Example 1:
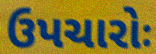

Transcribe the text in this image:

ઉપચારોઃ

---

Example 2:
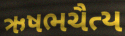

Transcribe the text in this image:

ઋષભચૈત્ય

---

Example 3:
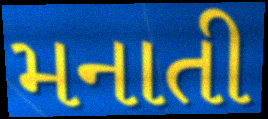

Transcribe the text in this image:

મનાતી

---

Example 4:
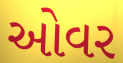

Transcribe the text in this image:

ઓવર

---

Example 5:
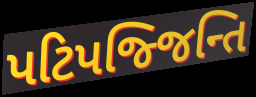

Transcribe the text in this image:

પટિપજ્જિન્તિ